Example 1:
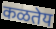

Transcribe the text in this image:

कळतेय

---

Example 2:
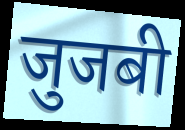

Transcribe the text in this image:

जुजबी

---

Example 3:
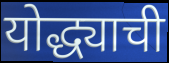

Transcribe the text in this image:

योद्ध्याची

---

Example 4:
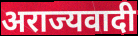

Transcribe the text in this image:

अराज्यवादी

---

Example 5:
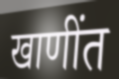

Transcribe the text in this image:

खाणींत